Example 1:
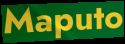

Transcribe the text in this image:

Maputo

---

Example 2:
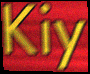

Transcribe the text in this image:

Kiy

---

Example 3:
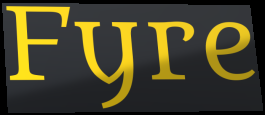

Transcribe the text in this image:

Fyre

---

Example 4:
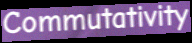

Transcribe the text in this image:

Commutativity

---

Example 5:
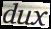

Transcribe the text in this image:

dux